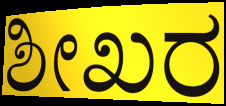
ಶೀಖರ